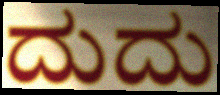
ದುದು